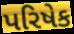
પરિષેક